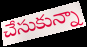
చేసుకున్నా